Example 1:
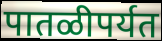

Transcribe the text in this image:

पातळीपर्यत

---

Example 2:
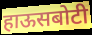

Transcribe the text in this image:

हाऊसबोटी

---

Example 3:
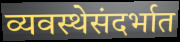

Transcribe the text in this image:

व्यवस्थेसंदर्भात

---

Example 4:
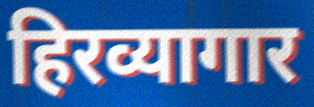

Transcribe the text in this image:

हिरव्यागार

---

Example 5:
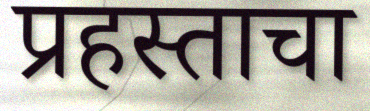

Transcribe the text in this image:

प्रहस्ताचा